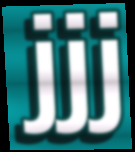
jjj